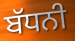
ਬੱਧਨੀ